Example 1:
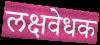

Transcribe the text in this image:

लक्षवेधक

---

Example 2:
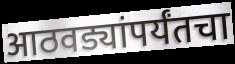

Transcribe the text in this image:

आठवड्यांपर्यंतचा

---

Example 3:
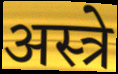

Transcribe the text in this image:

अस्त्रे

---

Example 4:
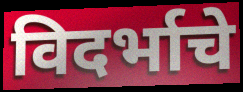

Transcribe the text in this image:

विदर्भाचे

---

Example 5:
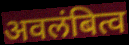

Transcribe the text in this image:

अवलंबित्व